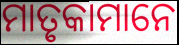
ମାତୃକାମାନେ